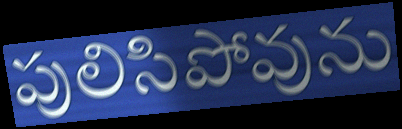
పులిసిపోవును